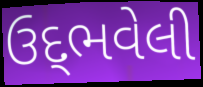
ઉદ્‌ભવેલી